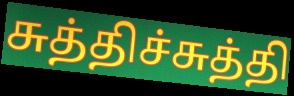
சுத்திச்சுத்தி